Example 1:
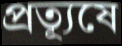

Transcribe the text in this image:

প্রত্যূষে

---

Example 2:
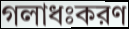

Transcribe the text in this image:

গলাধঃকরণ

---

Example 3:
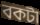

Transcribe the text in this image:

বকটা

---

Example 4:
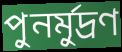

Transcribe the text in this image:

পুনর্মুদ্রণ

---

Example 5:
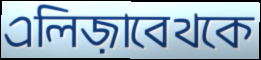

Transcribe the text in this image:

এলিজ়াবেথকে